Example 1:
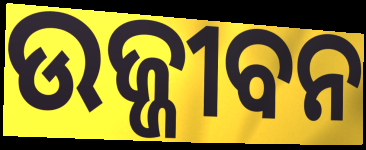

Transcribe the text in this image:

ଉଜ୍ଜୀବନ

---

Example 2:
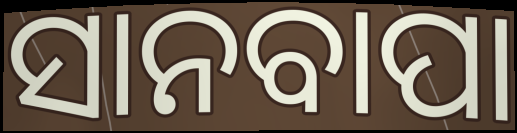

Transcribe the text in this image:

ସାନବାପା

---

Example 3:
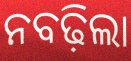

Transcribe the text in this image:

ନବଢ଼ିଲା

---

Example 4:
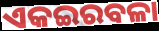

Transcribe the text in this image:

ଏକଇରବଳା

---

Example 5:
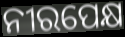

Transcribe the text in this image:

ନୀରପେକ୍ଷ